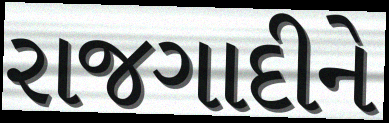
રાજગાદીને